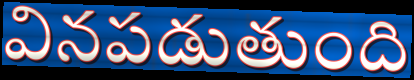
వినపడుతుంది